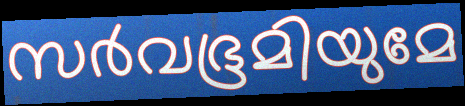
സർവഭൂമിയുമേ